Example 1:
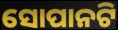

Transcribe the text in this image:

ସୋପାନଟି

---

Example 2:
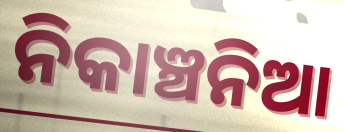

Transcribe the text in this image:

ନିକାଞ୍ଚନିଆ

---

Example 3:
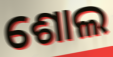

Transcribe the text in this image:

ଶୋଲ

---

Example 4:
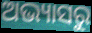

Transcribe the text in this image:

ଅଭ୍ୟାସରୁ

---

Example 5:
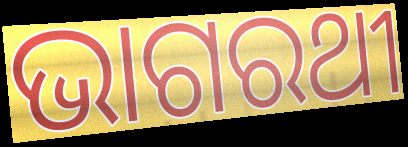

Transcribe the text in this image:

ଭାଗରଥୀ